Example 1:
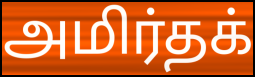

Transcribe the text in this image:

அமிர்தக்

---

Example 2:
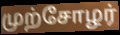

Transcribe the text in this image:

முற்சோழர்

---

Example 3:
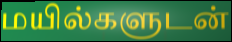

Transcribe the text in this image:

மயில்களுடன்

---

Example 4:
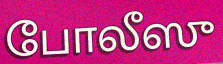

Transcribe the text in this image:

போலீஸு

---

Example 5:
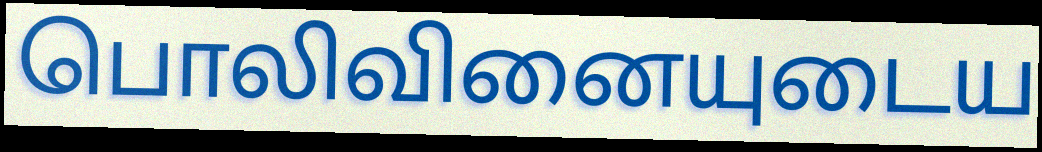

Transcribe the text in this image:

பொலிவினையுடைய